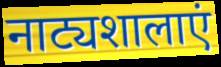
नाट्यशालाएं